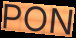
PON